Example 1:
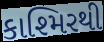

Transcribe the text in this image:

કાશ્મિરથી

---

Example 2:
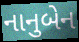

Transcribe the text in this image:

નાનુબેન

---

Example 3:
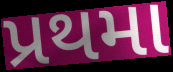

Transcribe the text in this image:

પ્રથમા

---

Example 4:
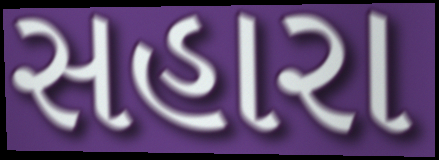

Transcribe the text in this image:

સહારા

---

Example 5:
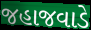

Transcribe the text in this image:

જહાજવાડે